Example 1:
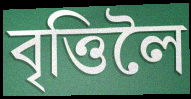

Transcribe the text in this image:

বৃত্তিলৈ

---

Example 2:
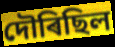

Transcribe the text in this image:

দৌৰিছিল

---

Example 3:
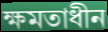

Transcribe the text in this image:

ক্ষমতাধীন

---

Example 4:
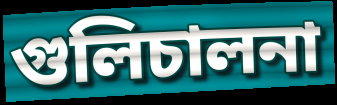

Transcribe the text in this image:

গুলিচালনা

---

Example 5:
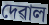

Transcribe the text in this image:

দেৱাল